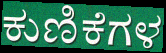
ಕುಣಿಕೆಗಳ